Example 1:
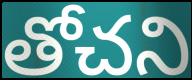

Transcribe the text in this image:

తోచని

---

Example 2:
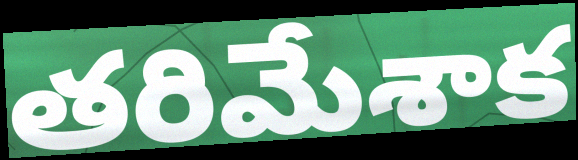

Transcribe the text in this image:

తరిమేశాక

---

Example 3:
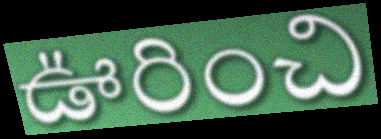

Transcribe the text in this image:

ఊరించి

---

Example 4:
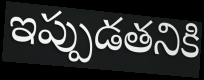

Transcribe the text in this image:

ఇప్పుడతనికి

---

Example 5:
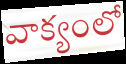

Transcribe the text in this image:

వాక్యంలో